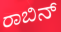
ರಾಬಿನ್